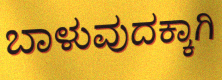
ಬಾಳುವುದಕ್ಕಾಗಿ